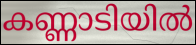
കണ്ണാടിയിൽ